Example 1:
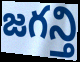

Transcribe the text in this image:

జగన్తి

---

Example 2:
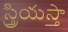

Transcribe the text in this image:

స్త్రియస్తా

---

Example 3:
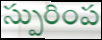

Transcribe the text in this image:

స్పురింప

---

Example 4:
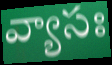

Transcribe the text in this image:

వ్యాసః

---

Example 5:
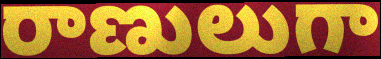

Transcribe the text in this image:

రాణులుగా